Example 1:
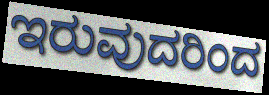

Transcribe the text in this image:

ಇರುವುದರಿಂದ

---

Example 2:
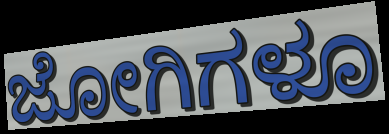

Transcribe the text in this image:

ಜೋಗಿಗಳೂ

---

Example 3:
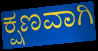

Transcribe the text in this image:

ಕ್ಷಣವಾಗಿ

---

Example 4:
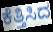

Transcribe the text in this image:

ಕೆತ್ತಿಸಿದ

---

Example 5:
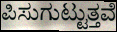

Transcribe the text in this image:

ಪಿಸುಗುಟ್ಟುತ್ತವೆ